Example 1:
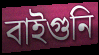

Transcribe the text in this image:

বাইগুনি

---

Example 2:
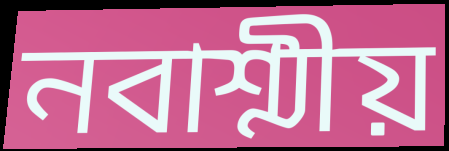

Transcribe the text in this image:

নবাশ্মীয়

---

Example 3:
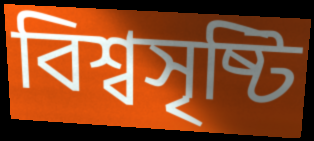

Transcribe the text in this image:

বিশ্বসৃষ্টি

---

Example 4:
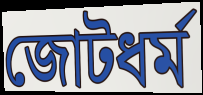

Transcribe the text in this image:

জোটধর্ম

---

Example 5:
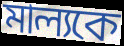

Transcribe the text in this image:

মাল্যকে